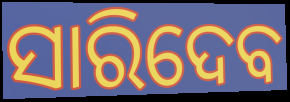
ସାରିଦେବ